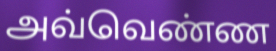
அவ்வெண்ண